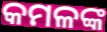
କମଳଙ୍କ